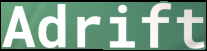
Adrift